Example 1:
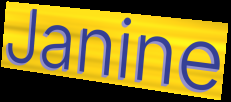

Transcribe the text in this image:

Janine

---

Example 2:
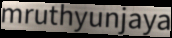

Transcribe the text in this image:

mruthyunjaya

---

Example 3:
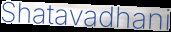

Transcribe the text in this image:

Shatavadhani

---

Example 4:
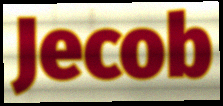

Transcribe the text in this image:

Jecob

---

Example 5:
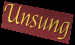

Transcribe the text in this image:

Unsung